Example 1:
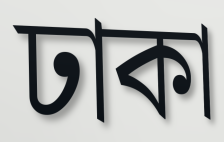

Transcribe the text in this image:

ঢাকা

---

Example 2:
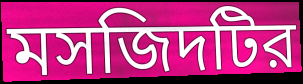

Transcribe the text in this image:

মসজিদটির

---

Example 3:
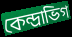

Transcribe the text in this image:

কেন্দ্রাভিগ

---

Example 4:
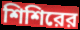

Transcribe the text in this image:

শিশিরের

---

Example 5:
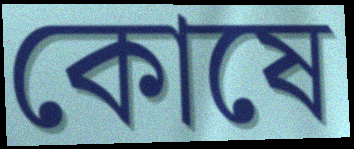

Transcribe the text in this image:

কোষে